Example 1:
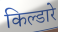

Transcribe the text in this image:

किल्डारे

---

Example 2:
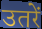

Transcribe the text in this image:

उतरें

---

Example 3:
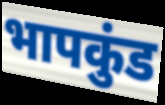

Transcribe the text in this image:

भापकुंड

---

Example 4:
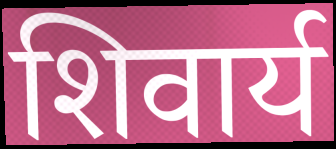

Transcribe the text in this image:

शिवार्य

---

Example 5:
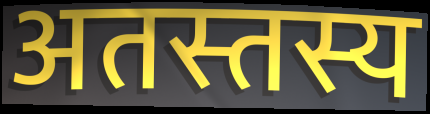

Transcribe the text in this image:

अतस्तस्य